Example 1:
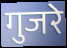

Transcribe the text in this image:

गुजरे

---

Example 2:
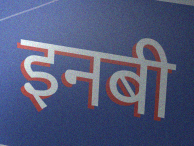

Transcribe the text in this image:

इनबी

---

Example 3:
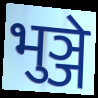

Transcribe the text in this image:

भुञ्जे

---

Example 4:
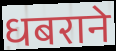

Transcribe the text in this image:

धबराने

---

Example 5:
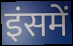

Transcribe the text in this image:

इंसमें